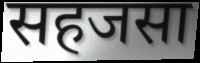
सहजसा